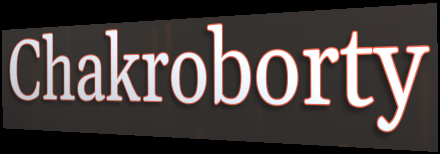
Chakroborty